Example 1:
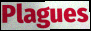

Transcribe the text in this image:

Plagues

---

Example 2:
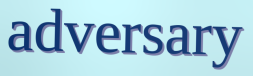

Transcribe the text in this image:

adversary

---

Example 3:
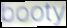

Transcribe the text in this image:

booty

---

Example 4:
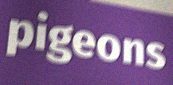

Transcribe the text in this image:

pigeons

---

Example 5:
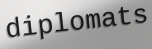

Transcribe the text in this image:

diplomats